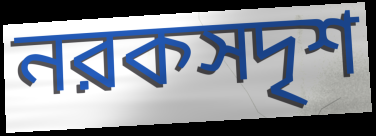
নরকসদৃশ